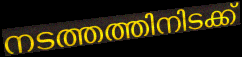
നടത്തത്തിനിടക്ക്